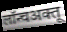
लॉन्चअक्तू